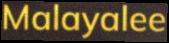
Malayalee